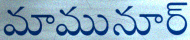
మామునూర్